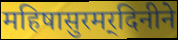
महिषासुरमर्दिनीने